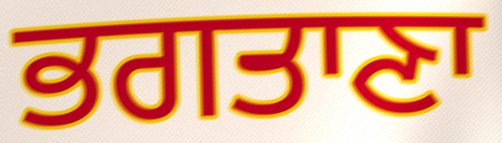
ਭਗਤਾਣਾ